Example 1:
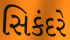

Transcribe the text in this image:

સિકંદરે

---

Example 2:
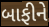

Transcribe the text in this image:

બાફીને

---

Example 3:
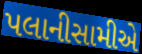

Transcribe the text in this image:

પલાનીસામીએ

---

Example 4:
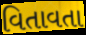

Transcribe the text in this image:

વિતાવતા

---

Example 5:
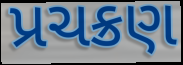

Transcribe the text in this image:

પ્રચક્રણ